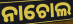
ନାଚୋଲ